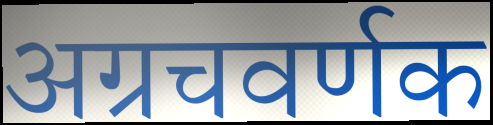
अग्रचवर्णक